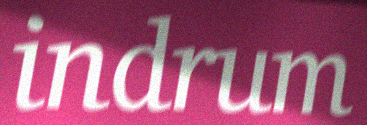
indrum